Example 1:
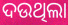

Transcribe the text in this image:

ଦଉଥିଲା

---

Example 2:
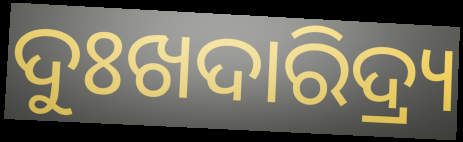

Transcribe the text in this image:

ଦୁଃଖଦାରିଦ୍ର୍ୟ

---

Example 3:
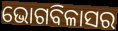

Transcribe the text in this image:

ଭୋଗବିଳାସର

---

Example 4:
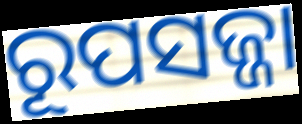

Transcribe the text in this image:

ରୂପସଜ୍ଜା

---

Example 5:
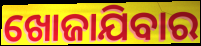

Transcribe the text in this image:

ଖୋଜାଯିବାର